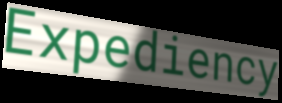
Expediency